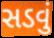
સડવું